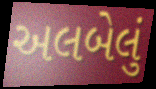
અલબેલું